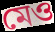
মেও